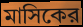
মাসিকের